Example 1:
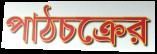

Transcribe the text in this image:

পাঠচক্রের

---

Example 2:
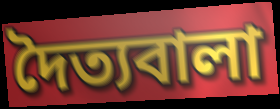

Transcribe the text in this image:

দৈত্যবালা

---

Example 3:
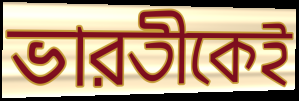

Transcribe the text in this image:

ভারতীকেই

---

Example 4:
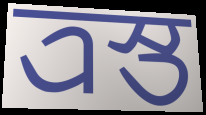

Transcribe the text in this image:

ত্রস্ত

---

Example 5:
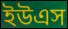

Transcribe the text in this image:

ইউএস